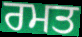
ਰਮਤ